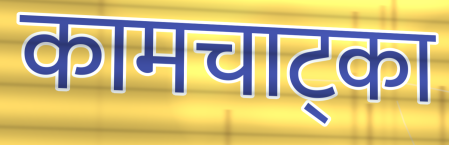
कामचाट्का